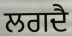
ਲਗਦੈ